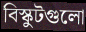
বিস্কুটগুলো